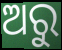
ଅରୁ